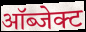
ऑब्‍जेक्‍ट